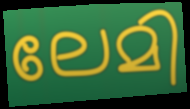
ലേമി